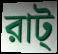
রাট্